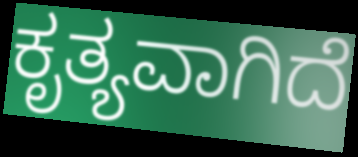
ಕೃತ್ಯವಾಗಿದೆ